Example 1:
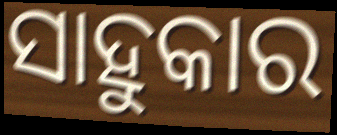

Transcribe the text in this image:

ସାହୁକାର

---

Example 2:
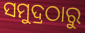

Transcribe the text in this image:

ସମୁଦ୍ରଠାରୁ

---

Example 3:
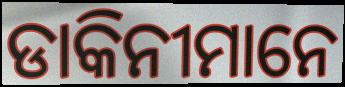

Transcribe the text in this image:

ଡାକିନୀମାନେ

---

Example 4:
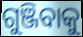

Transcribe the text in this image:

ଗୁଞ୍ଜିବାକୁ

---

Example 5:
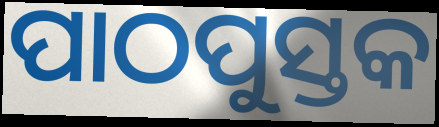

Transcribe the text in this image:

ପାଠପୁସ୍ତକ